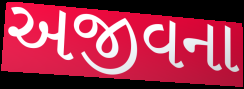
અજીવના